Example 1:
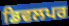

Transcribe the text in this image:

ਡਿਵਲਪਰ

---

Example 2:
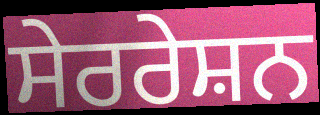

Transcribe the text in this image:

ਸੇਰਰੇਸ਼ਨ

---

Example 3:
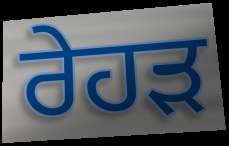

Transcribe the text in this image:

ਰੇਹੜ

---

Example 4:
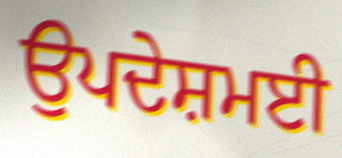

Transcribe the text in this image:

ਉਪਦੇਸ਼ਮਈ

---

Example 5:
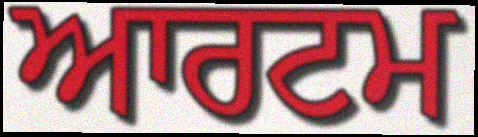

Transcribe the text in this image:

ਆਰਟਮ